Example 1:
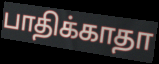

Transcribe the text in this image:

பாதிக்காதா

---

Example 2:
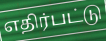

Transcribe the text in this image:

எதிர்பட்டு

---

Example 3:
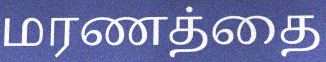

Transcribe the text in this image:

மரணத்தை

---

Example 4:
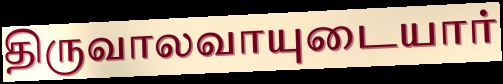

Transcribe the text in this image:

திருவாலவாயுடையார்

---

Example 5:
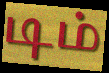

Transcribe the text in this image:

டிம்